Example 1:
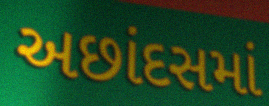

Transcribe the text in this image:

અછાંદસમાં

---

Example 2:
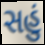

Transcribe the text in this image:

સહું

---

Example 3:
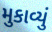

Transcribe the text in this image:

મુકાવ્યું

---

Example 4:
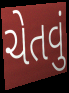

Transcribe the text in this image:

ચેતવું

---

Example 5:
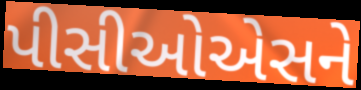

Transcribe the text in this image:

પીસીઓએસને